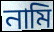
নামি